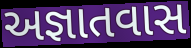
અજ્ઞાતવાસ